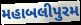
મહાબલીપુરમ